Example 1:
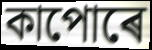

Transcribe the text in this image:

কাপোৰে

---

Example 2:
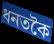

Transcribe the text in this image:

ধনতকৈ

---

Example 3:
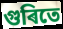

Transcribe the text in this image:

গুৰিতে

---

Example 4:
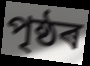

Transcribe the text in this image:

পৃষ্ঠৰ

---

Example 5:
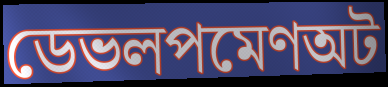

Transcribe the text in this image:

ডেভলপমেণঅট